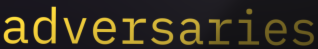
adversaries